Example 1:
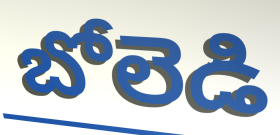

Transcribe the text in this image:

బోలెడి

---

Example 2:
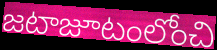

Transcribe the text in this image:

జటాజూటంలోంచి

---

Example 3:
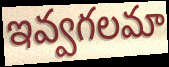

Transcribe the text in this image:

ఇవ్వగలమా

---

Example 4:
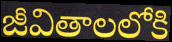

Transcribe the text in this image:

జీవితాలలోకి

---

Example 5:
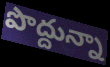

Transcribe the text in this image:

పొద్దున్నా